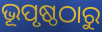
ଭୂପୃଷ୍ଠଠାରୁ